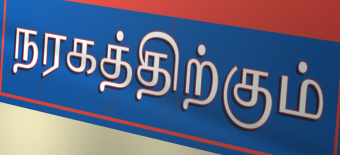
நரகத்திற்கும்